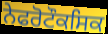
ਨੇਫਰੋਟੌਕਸਿਕ